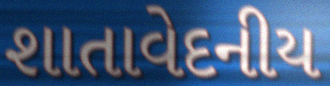
શાતાવેદનીય